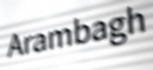
Arambagh